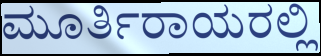
ಮೂರ್ತಿರಾಯರಲ್ಲಿ